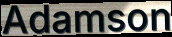
Adamson